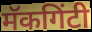
मॅकगिंटी